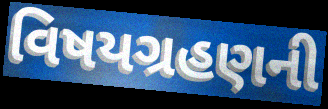
વિષયગ્રહણની